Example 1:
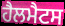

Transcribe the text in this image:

ਹੈਲਮੈਟਸ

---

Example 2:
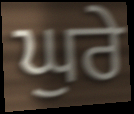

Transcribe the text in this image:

ਘੁਰੇ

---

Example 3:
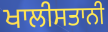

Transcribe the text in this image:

ਖਾਲੀਸਤਾਨੀ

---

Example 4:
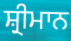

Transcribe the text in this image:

ਸ਼੍ਰੀਮਾਨ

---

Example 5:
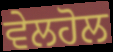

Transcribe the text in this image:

ਵੇਲਹੋਲ